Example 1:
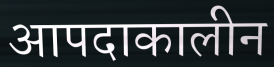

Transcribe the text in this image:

आपदाकालीन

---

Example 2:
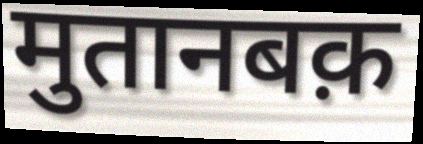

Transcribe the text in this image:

मुतानबक़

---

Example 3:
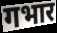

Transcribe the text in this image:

गभार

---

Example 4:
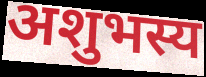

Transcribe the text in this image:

अशुभस्य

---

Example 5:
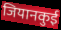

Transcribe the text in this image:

जियानकुई